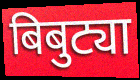
बिबुट्या